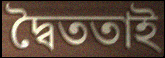
দ্বৈততাই